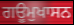
ਗਊਮੁਖਾਸਨ